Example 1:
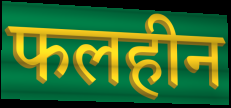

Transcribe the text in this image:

फलहीन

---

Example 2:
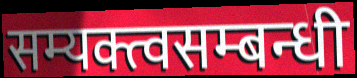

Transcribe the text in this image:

सम्यक्त्वसम्बन्धी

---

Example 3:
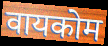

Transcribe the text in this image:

वायकोम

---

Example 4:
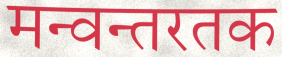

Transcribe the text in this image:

मन्वन्तरतक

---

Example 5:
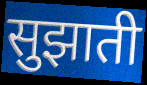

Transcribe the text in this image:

सुझाती